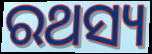
ରଥସ୍ୟ